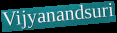
Vijyanandsuri